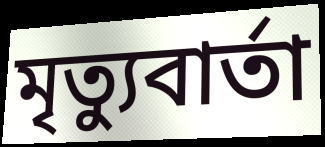
মৃত্যুবার্তা